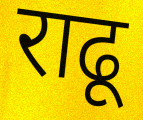
राढू